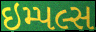
ઇમ્પલ્સ